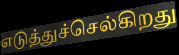
எடுத்துச்செல்கிறது